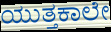
ಯುತ್ತಕಾಲೇ